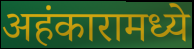
अहंकारामध्ये